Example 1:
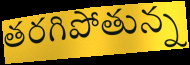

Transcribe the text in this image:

తరగిపోతున్న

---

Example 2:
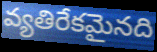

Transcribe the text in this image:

వ్యతిరేకమైనది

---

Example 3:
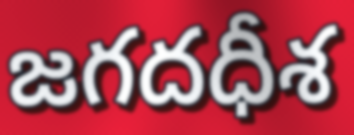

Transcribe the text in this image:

జగదధీశ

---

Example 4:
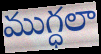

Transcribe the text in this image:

ముగ్ధలా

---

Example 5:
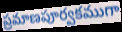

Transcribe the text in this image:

ప్రమాణపూర్వకముగా